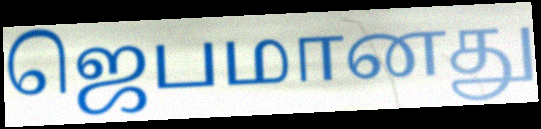
ஜெபமானது